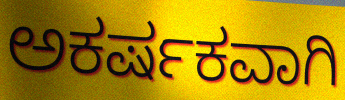
ಅಕರ್ಷಕವಾಗಿ